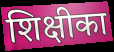
शिक्षीका